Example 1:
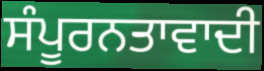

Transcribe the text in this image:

ਸੰਪੂਰਨਤਾਵਾਦੀ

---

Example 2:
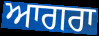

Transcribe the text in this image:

ਆਗਰਾ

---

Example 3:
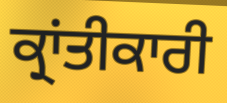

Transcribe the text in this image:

ਕ੍ਰਾਂਤੀਕਾਰੀ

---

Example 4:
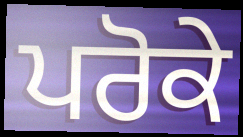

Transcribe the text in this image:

ਪਰੋਕੇ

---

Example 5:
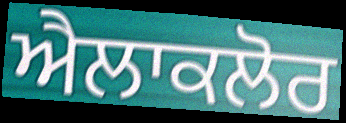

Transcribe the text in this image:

ਐਲਾਕਲੋਰ